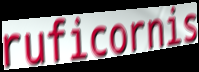
ruficornis